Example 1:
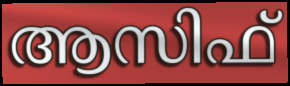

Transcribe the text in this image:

ആസിഫ്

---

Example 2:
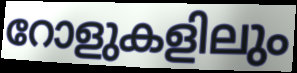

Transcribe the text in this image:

റോളുകളിലും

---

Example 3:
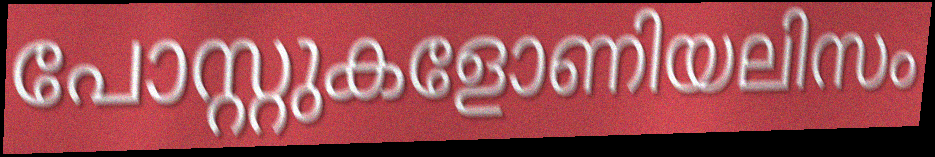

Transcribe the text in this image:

പോസ്റ്റുകളോണിയലിസം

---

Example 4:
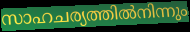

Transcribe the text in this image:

സാഹചര്യത്തിൽനിന്നും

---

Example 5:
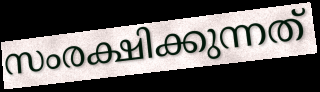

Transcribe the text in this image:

സംരക്ഷിക്കുന്നത്